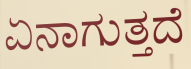
ಏನಾಗುತ್ತದೆ